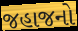
જહાજનો